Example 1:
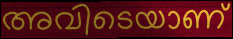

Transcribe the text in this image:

അവിടെയാണ്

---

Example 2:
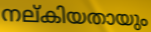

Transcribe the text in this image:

നല്കിയതായും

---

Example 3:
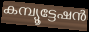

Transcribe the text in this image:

കമ്പ്യൂട്ടേഷൻ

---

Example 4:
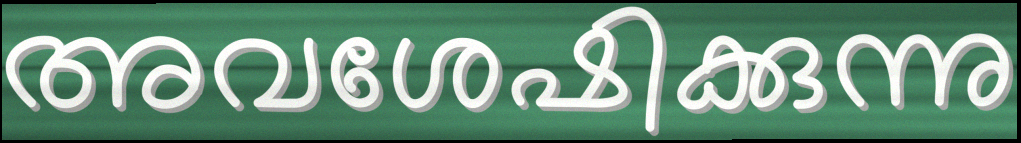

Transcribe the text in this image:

അവശേഷിക്കുന്നു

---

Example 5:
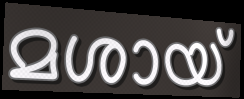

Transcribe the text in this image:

മശായ്